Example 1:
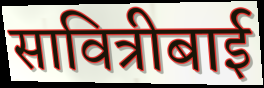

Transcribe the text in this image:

सावित्रीबाई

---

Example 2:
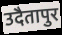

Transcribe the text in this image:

उदैतापुर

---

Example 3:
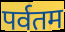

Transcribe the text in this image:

पर्वतम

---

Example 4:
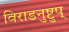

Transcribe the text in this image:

विराडनुष्टुप्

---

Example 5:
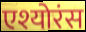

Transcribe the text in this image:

एश्योरंस